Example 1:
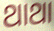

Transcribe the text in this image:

ଥାଥା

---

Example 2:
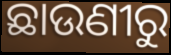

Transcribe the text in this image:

ଛାଉଣୀରୁ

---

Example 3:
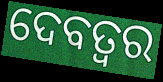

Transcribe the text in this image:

ଦେବତ୍ଵର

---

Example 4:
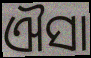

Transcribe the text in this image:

ଐସା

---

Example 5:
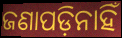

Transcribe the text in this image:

ଜଣାପଡ଼ିନାହିଁ